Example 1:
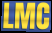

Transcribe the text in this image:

LMC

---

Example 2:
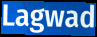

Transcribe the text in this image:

Lagwad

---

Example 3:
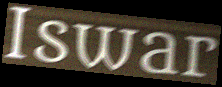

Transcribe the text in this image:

Iswar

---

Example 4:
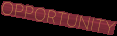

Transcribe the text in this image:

OPPORTUNITY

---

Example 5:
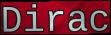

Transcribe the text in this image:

Dirac